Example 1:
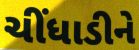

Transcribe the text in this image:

ચીંધાડીને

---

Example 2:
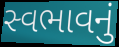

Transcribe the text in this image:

સ્વભાવનું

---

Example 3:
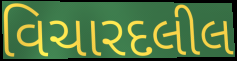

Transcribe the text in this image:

વિચારદલીલ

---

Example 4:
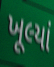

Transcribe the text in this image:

ખૂલ્યાં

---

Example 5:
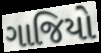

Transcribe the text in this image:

ગાજિયો